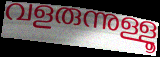
വളരുന്നുള്ളൂ